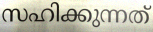
സഹിക്കുന്നത്